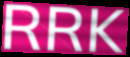
RRK